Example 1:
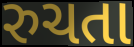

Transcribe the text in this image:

રુચતા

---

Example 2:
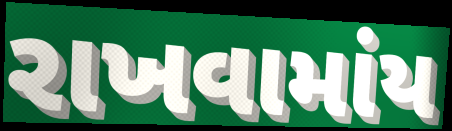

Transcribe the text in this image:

રાખવામાંય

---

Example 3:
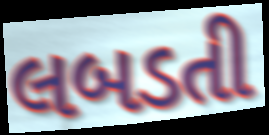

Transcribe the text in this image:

લબડતી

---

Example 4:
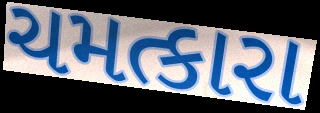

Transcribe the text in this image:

ચમત્કારા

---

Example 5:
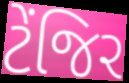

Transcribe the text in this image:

ટેંજિર